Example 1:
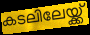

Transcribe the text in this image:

കടലിലേയ്ക്ക്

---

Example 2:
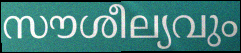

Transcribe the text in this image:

സൗശീല്യവും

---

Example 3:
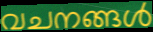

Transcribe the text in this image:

വചനങ്ങൾ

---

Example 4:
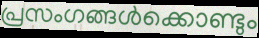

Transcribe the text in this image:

പ്രസംഗങ്ങൾക്കൊണ്ടും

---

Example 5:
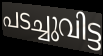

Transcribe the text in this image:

പടച്ചുവിട്ട